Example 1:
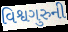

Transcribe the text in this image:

વિશ્વગુરુની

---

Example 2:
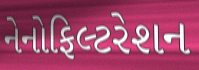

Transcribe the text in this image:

નેનોફિલ્ટરેશન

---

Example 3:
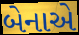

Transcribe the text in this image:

બેનાએ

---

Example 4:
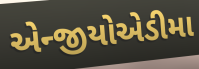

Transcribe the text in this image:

એન્જીયોએડીમા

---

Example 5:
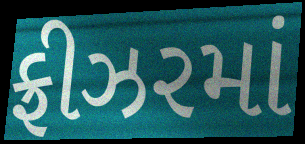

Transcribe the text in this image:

ફ્રીઝરમાં